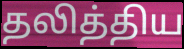
தலித்திய